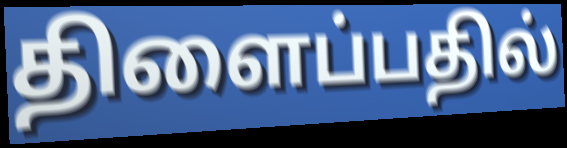
திளைப்பதில்